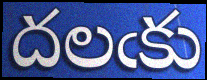
దలఁకు